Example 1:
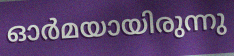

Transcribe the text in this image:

ഓർമയായിരുന്നു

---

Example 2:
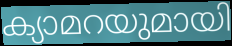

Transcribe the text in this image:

ക്യാമറയുമായി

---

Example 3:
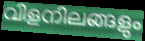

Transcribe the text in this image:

വിളനിലങ്ങളും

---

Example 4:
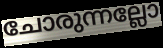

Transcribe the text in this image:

ചോരുന്നല്ലോ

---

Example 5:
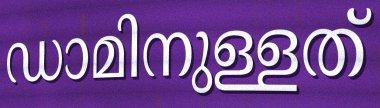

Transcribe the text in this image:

ഡാമിനുള്ളത്